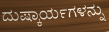
ದುಷ್ಕಾರ್ಯಗಳನ್ನು